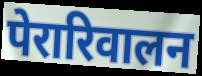
पेरारिवालन